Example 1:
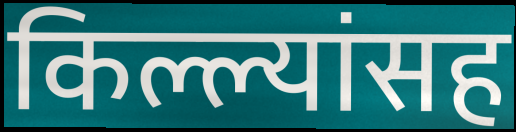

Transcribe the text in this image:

किल्ल्यांसह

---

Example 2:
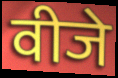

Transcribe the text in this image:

वीजे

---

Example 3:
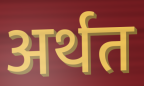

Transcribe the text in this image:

अर्थत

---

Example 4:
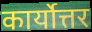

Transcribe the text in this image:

कार्योत्तर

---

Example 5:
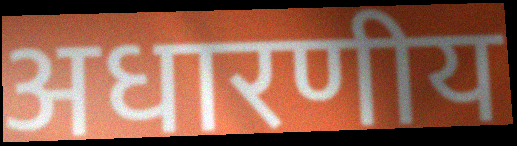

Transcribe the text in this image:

अधारणीय